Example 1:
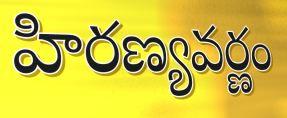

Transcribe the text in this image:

హిరణ్యవర్ణం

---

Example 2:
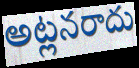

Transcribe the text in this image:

అట్లనరాదు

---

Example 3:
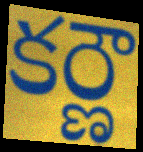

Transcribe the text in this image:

కర్ణౌ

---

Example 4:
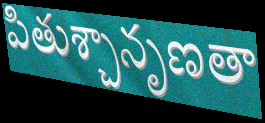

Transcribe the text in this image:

పితుశ్చానృణతా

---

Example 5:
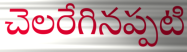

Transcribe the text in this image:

చెలరేగినప్పటి